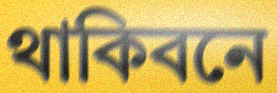
থাকিবনে